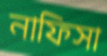
নাফিসা